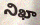
నిఖా